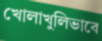
খোলাখুলিভাবে